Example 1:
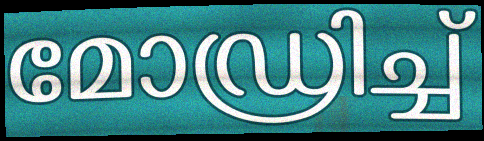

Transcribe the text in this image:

മോഡ്രിച്ച്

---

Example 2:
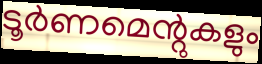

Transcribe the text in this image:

ടൂർണമെന്റുകളും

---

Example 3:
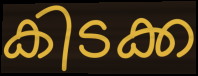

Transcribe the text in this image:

കിടക്ക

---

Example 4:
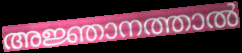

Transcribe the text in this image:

അജ്ഞാനത്താൽ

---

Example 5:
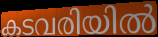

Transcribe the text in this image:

കടവരിയിൽ